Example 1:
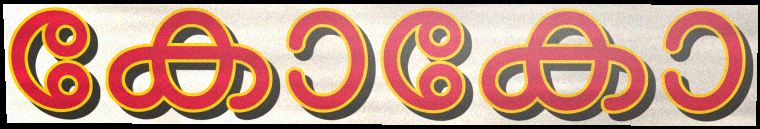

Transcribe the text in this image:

കോകോ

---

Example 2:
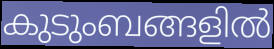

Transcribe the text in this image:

കുടുംബങ്ങളിൽ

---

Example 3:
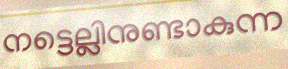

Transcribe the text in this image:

നട്ടെല്ലിനുണ്ടാകുന്ന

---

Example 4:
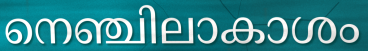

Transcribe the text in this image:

നെഞ്ചിലാകാശം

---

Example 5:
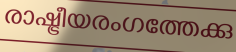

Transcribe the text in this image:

രാഷ്ട്രീയരംഗത്തേക്കു